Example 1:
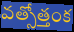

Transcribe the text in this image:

వత్సోత్తంక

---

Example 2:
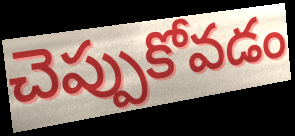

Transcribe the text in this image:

చెప్పుకోవడం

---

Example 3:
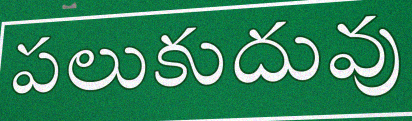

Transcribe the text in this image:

పలుకుదువు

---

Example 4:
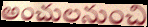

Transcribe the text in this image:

అంచులనుంచి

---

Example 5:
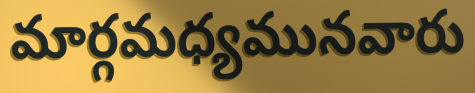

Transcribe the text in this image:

మార్గమధ్యమునవారు